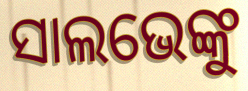
ସାଲଭେଙ୍କୁ